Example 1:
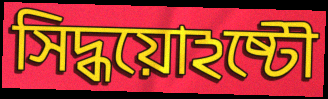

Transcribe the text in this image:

সিদ্ধয়োঽষ্টৌ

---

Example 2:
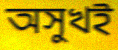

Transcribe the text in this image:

অসুখই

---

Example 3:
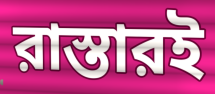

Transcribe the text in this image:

রাস্তারই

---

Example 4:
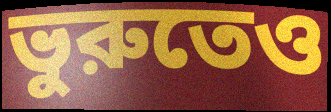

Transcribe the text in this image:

ভুরুতেও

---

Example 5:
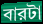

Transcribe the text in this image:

বারটা